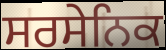
ਸਰਸੇਨਿਕ